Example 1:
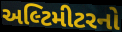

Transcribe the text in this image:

અલ્ટિમીટરનો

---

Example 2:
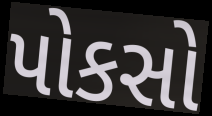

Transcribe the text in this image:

પોકસો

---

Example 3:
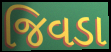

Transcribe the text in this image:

જિવડા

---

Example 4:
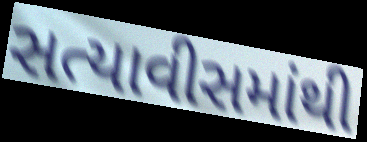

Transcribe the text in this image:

સત્યાવીસમાંથી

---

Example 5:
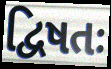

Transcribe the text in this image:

દ્વિષતઃ